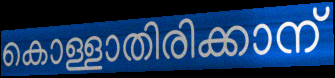
കൊള്ളാതിരിക്കാന്